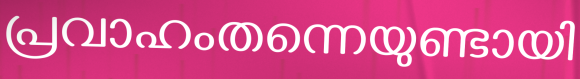
പ്രവാഹംതന്നെയുണ്ടായി